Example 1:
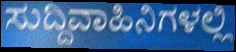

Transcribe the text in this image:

ಸುದ್ದಿವಾಹಿನಿಗಳಲ್ಲಿ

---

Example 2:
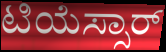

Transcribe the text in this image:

ಟಿಯೆಸ್ಸಾರ್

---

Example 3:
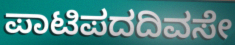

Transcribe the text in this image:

ಪಾಟಿಪದದಿವಸೇ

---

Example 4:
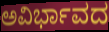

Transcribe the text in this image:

ಅವಿರ್ಭಾವದ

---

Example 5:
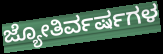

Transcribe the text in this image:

ಜ್ಯೋತಿರ್ವರ್ಷಗಳ